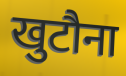
खुटौना